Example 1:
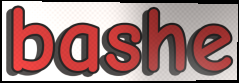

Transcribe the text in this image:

bashe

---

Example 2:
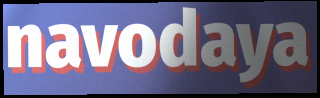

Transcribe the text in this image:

navodaya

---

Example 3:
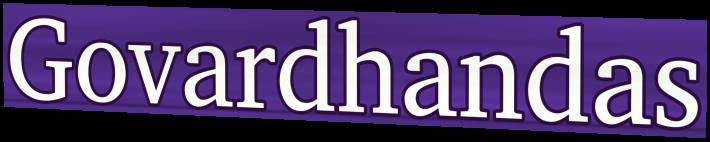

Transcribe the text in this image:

Govardhandas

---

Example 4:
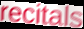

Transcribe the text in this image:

recitals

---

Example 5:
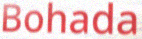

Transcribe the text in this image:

Bohada